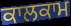
ਕਾਲਕਾਮ